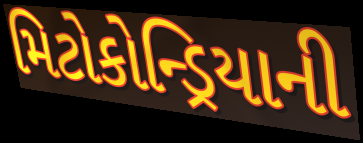
મિટોકોન્ડ્રિયાની